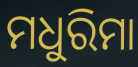
ମଧୁରିମା